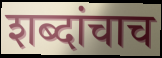
शब्दांचाच